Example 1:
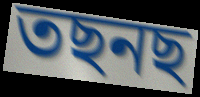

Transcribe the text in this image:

তছনছ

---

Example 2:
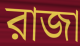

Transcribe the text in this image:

রাজা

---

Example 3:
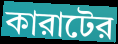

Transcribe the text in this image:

কারাটের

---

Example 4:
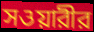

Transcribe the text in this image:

সওয়ারীর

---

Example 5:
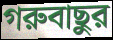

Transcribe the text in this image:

গরুবাছুর